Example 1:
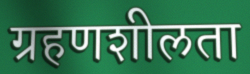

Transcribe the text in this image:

ग्रहणशीलता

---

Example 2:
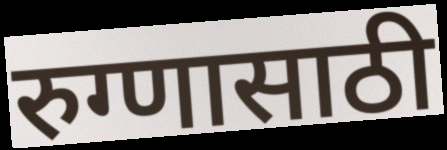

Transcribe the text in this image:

रुग्णासाठी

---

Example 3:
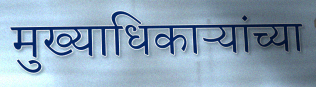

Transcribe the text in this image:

मुख्याधिकाऱ्यांच्या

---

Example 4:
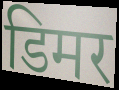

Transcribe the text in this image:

डिमर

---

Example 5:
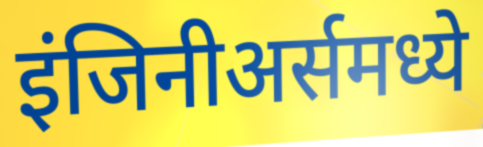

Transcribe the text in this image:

इंजिनीअर्समध्ये